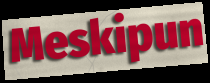
Meskipun